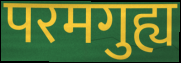
परमगुह्य